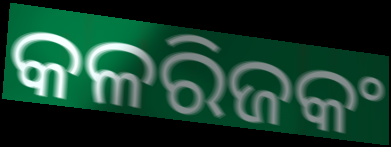
କଳରିଜକଂ